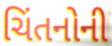
ચિંતનોની